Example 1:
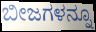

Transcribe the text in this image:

ಬೀಜಗಳನ್ನೂ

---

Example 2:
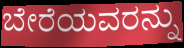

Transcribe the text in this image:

ಬೇರೆಯವರನ್ನು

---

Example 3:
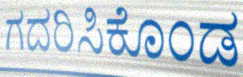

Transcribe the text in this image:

ಗದರಿಸಿಕೊಂಡ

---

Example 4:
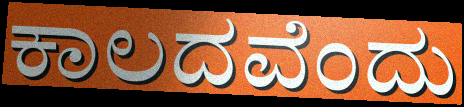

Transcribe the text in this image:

ಕಾಲದವೆಂದು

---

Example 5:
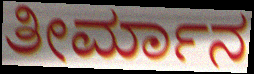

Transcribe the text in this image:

ತೀರ್ಮಾನ